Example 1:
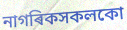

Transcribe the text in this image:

নাগৰিকসকলকো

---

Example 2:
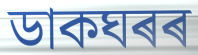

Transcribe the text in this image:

ডাকঘৰৰ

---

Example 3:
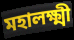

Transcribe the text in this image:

মহালক্ষ্মী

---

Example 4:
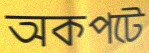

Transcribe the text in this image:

অকপটে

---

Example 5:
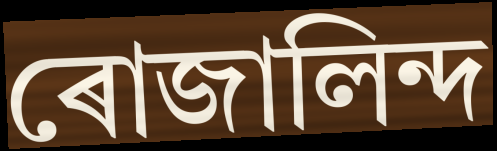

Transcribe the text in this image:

ৰোজালিন্দ